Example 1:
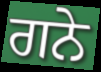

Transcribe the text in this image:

ਗਨੇ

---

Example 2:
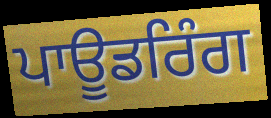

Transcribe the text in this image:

ਪਾਊਡਰਿੰਗ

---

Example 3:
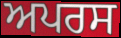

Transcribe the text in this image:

ਅਪਰਸ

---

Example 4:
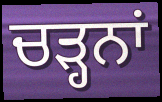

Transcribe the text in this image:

ਚੜ੍ਹਨਾਂ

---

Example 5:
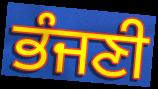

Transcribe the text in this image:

ਭੰਜਣੀ